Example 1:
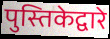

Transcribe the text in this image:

पुस्तिकेद्वारे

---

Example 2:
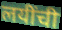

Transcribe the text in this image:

लयींची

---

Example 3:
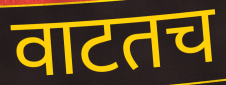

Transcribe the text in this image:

वाटतच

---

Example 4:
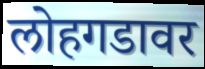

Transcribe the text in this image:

लोहगडावर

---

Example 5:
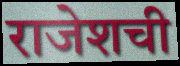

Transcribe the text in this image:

राजेशची